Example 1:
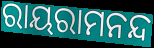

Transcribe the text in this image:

ରାୟରାମନନ୍ଦ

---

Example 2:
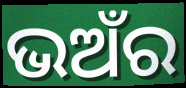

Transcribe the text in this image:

ଭଅଁର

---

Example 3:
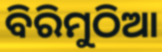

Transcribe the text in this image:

ବିରିମୁଠିଆ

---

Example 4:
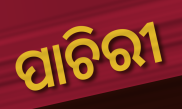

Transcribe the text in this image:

ପାଚିରୀ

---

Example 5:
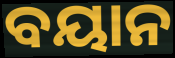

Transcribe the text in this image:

ବୟାନ